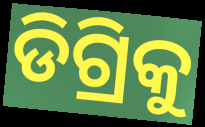
ଡିଗ୍ରିକୁ